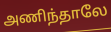
அணிந்தாலே